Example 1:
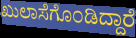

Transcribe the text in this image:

ಖುಲಾಸೆಗೊಂಡಿದ್ದಾರೆ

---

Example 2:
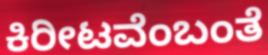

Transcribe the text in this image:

ಕಿರೀಟವೆಂಬಂತೆ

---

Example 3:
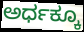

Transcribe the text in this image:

ಅರ್ಧಕ್ಕೂ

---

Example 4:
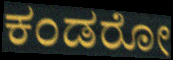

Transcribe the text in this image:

ಕಂಡರೋ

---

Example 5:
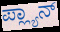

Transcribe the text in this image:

ಪ್ಲ್ಯಾನ್